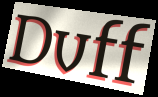
Duff